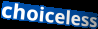
choiceless